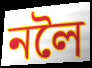
নলৈ